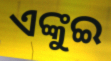
ଏଙ୍କୁଇ